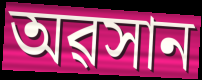
অৱসান